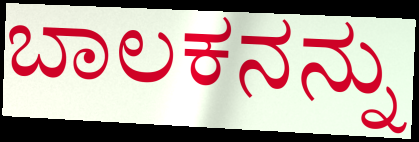
ಬಾಲಕನನ್ನು